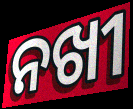
ନଖୀ